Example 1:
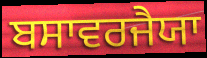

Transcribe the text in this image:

ਬਸਾਵਰਜੈਯਾ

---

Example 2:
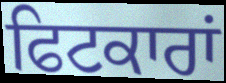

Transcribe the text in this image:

ਫਿਟਕਾਰਾਂ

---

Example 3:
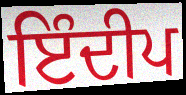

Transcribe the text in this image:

ਇੰਦੀਪ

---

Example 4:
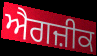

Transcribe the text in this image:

ਐਗਜ਼ੀਕ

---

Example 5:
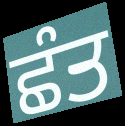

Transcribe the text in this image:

ਛੰਤ